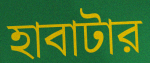
হাবাটার